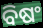
ବିଷଂ